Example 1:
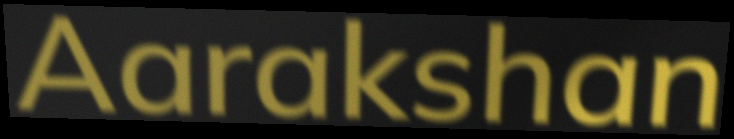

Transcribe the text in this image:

Aarakshan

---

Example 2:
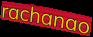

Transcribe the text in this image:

rachanao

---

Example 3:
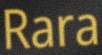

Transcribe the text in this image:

Rara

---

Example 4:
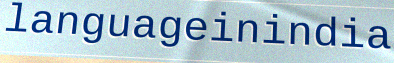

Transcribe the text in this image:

languageinindia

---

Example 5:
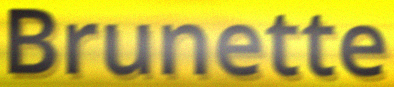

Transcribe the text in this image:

Brunette